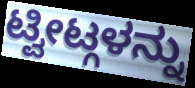
ಟ್ವೀಟ್ಗಳನ್ನು